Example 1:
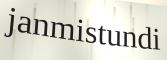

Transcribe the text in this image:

janmistundi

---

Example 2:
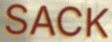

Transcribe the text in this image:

SACK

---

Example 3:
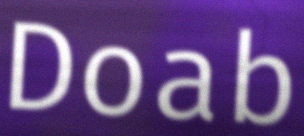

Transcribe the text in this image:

Doab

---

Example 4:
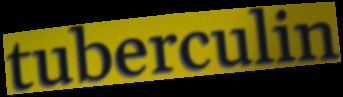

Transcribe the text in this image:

tuberculin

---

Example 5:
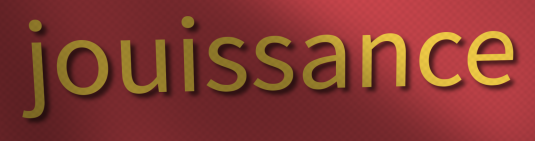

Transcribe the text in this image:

jouissance